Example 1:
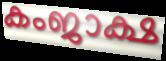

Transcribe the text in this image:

കംജാക്ഷ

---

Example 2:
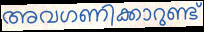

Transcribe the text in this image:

അവഗണിക്കാറുണ്ട്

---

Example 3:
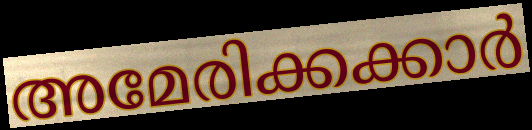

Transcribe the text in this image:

അമേരിക്കക്കാർ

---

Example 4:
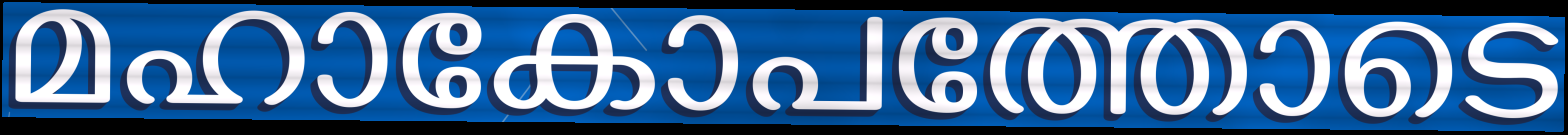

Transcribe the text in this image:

മഹാകോപത്തോടെ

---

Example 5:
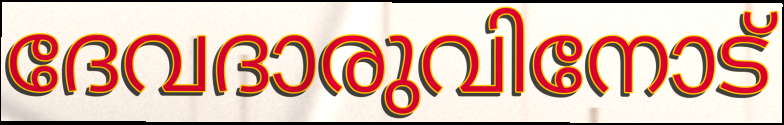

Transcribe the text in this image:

ദേവദാരുവിനോട്